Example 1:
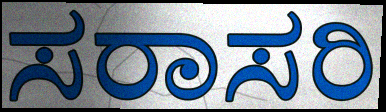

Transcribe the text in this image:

ಸರಾಸರಿ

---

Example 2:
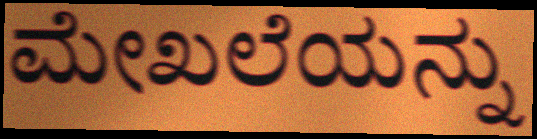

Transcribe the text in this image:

ಮೇಖಲೆಯನ್ನು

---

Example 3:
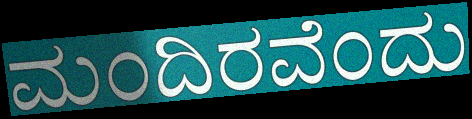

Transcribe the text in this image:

ಮಂದಿರವೆಂದು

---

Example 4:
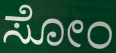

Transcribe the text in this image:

ಸೋಂ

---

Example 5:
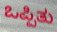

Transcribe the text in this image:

ಒಪ್ಪಿತು